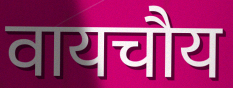
वायचौय